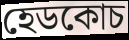
হেডকোচ